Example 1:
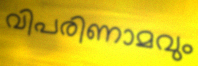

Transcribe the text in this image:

വിപരിണാമവും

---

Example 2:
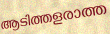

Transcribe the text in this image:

ആടിത്തളരാത്ത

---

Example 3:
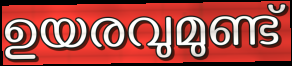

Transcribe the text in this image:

ഉയരവുമുണ്ട്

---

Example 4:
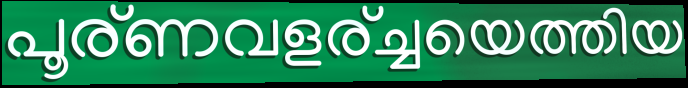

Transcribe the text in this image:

പൂര്ണവളര്ച്ചയെത്തിയ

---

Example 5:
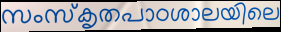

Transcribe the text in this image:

സംസ്കൃതപാഠശാലയിലെ